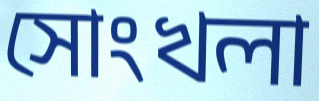
সোংখলা